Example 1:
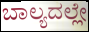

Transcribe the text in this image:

ಬಾಲ್ಯದಲ್ಲೇ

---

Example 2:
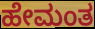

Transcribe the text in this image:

ಹೇಮಂತ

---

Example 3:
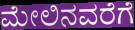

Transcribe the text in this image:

ಮೇಲಿನವರೆಗೆ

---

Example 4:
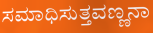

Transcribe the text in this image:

ಸಮಾಧಿಸುತ್ತವಣ್ಣನಾ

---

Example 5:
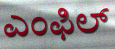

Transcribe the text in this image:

ಎಂಫಿಲ್